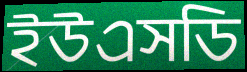
ইউএসডি